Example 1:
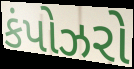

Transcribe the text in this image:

કંપોઝરો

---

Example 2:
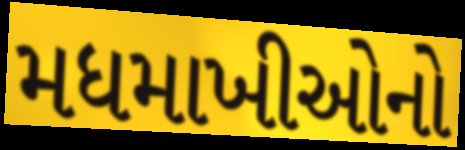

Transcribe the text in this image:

મધમાખીઓનો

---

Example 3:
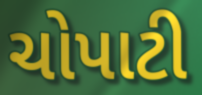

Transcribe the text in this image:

ચોપાટી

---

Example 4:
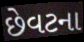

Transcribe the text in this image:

છેવટના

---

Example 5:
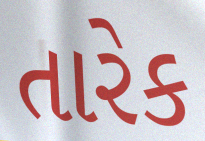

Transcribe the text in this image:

તારેક